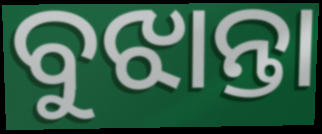
ବୁଝାନ୍ତା